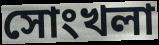
সোংখলা